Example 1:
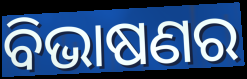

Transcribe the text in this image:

ବିଭାଷଣର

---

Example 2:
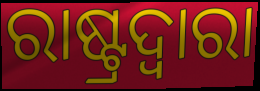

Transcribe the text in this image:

ରାଷ୍ଟ୍ରଦ୍ୱାରା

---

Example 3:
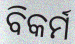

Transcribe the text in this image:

ବିକର୍ମ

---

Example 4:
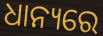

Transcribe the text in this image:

ଧାନ୍ୟରେ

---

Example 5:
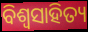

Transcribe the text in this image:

ବିଶ୍ଵସାହିତ୍ୟ